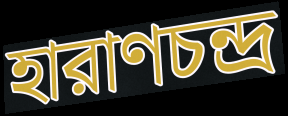
হারাণচন্দ্র